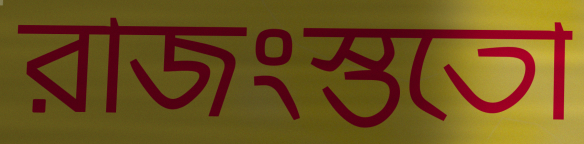
রাজংস্ততো